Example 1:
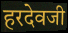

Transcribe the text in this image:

हरदेवजी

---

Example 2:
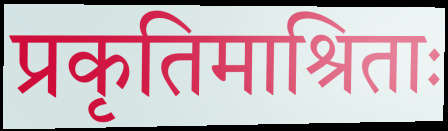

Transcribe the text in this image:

प्रकृतिमाश्रिताः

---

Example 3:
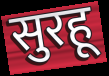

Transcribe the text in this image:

सुरहू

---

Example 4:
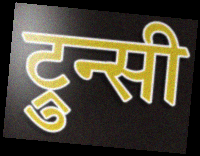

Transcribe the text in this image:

ट्रुन्सी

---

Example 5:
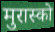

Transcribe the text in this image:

मुरास्को